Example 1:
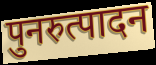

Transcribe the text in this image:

पुनरुत्पादन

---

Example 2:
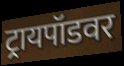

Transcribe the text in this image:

ट्रायपॉडवर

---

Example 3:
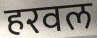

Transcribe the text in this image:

हरवल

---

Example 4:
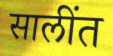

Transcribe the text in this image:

सालींत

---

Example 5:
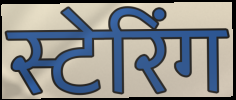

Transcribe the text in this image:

स्टेरिंग